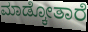
ಮಾಡ್ಕೋತಾರೆ